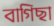
বাগিছা